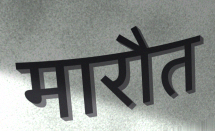
मारौत